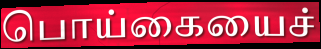
பொய்கையைச்